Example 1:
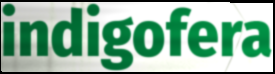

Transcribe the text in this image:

indigofera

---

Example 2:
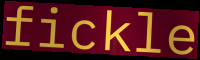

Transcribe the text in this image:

fickle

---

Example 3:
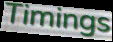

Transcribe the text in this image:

Timings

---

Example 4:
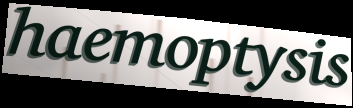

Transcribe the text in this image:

haemoptysis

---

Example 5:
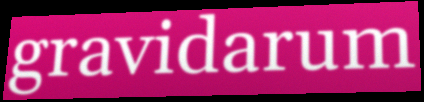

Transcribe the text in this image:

gravidarum